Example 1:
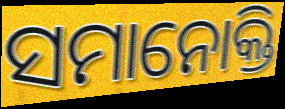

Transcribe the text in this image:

ସମାନୋକ୍ତି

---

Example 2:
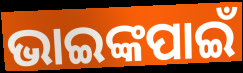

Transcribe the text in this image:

ଭାଇଙ୍କପାଇଁ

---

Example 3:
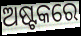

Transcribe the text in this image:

ଅଷ୍ଟକରେ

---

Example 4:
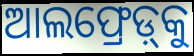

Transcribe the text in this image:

ଆଲଫ୍ରେଡ଼୍‍କୁ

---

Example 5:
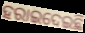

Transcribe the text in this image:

ହରାଇଦେଇଛି